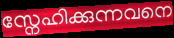
സ്നേഹിക്കുന്നവനെ